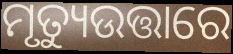
ମୃତ୍ୟୁଉତ୍ତାରେ